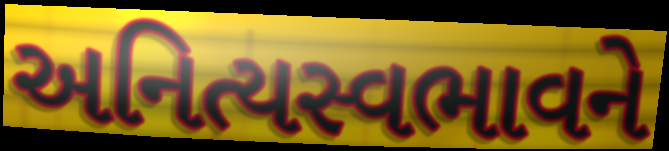
અનિત્યસ્વભાવને